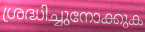
ശ്രദ്ധിച്ചുനോക്കുക